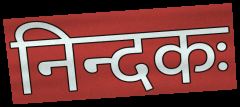
निन्दकः